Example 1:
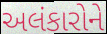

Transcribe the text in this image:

અલંકારોને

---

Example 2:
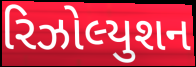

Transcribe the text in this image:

રિઝોલ્યુશન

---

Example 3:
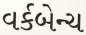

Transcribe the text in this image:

વર્કબેન્ચ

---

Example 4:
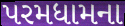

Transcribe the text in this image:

પરમધામના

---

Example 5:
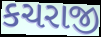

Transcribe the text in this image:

કચરાજી